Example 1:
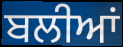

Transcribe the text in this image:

ਬਲੀਆਂ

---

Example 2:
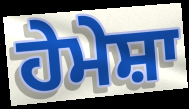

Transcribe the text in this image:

ਹੇਮੇਸ਼ਾ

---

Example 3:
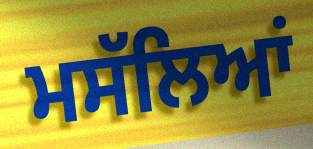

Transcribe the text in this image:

ਮਸੱਲਿਆਂ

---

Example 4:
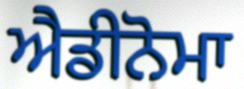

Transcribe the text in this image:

ਐਡੀਨੋਮਾ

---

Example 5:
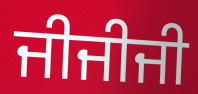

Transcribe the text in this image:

ਜੀਜੀਜੀ